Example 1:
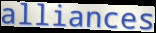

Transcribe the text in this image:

alliances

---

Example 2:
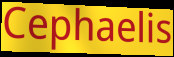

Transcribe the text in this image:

Cephaelis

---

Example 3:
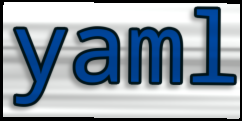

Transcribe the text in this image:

yaml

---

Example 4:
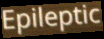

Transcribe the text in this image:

Epileptic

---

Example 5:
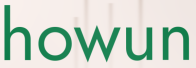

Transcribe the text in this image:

howun